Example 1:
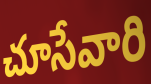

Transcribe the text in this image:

చూసేవారి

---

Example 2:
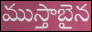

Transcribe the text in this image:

ముస్తాబైన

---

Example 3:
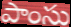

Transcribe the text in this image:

పాంసు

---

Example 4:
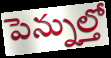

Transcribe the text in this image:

పెన్నుల్తో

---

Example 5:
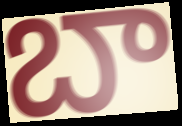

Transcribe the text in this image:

బా